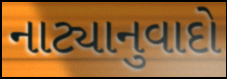
નાટ્યાનુવાદો